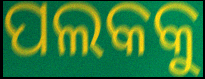
ପଲକକୁ